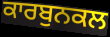
ਕਾਰਬੁਨਕਲ